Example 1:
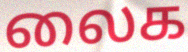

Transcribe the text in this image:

லைக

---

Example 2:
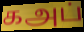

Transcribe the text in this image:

கஅப்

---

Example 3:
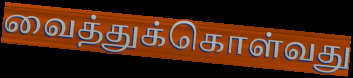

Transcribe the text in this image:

வைத்துக்கொள்வது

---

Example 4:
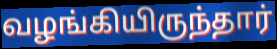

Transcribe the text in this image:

வழங்கியிருந்தார்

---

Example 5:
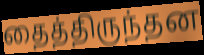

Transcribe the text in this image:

தைத்திருந்தன